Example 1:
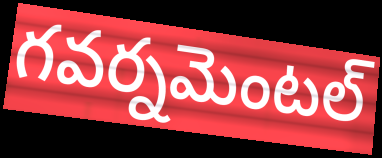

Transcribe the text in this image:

గవర్నమెంటల్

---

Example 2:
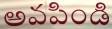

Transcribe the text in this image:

అవపిండి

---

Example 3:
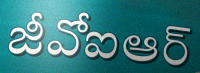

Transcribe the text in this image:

జీవోఐఆర్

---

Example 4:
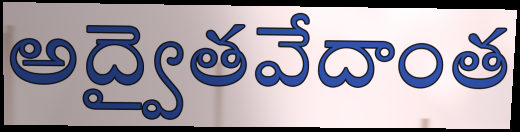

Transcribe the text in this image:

అద్వైతవేదాంత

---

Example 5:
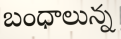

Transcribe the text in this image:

బంధాలున్న